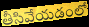
తీసివేయడంలో